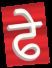
ਫੇ